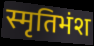
स्मृतिभंश